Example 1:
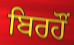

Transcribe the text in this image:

ਬਿਰਹੌਂ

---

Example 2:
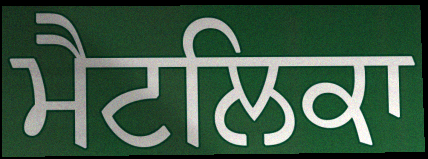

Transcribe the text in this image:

ਮੈਟਲਿਕਾ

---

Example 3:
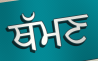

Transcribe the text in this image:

ਥੱਮਣ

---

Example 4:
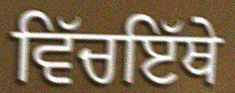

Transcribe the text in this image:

ਵਿੱਚਇੱਥੇ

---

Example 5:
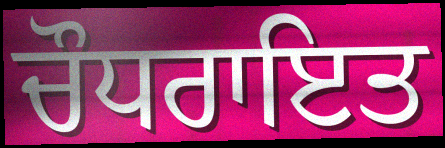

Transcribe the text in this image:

ਚੌਧਰਾਇਤ